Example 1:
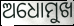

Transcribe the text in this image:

ଅଧୋମୁଖ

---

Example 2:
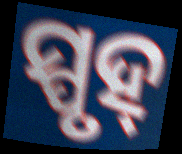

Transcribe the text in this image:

ସ୍ପୃହ୍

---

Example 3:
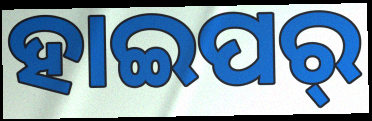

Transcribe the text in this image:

ହାଇପର୍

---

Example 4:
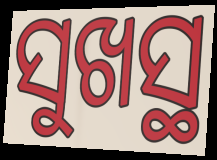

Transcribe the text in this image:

ସୁଖସ୍ଥ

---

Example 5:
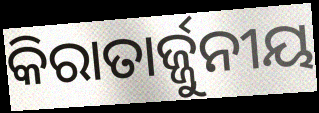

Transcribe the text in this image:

କିରାତାର୍ଜ୍ଜୁନୀୟ